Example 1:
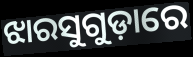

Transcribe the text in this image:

ଝାରସୁଗୁଡ଼ାରେ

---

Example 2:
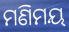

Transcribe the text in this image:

ମଣିମୟ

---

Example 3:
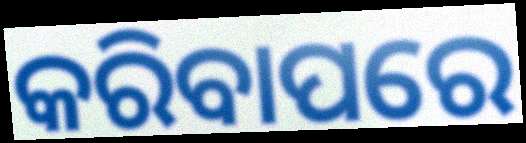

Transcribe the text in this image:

କରିବାପରେ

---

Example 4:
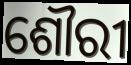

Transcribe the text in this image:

ଶୌରୀ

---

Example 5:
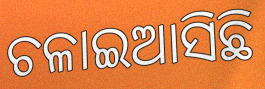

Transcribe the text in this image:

ଚଳାଇଆସିଛି